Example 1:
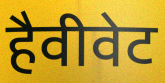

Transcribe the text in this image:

हैवीवेट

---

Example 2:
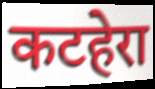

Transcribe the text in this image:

कटहेरा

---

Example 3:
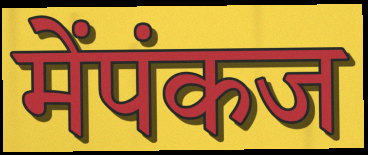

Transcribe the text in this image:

मेंपंकज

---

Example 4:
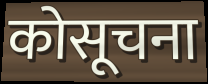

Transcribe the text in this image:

कोसूचना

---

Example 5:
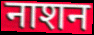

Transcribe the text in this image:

नाशन